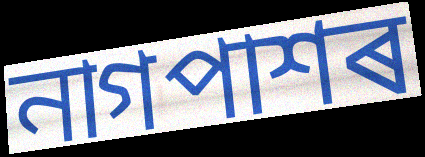
নাগপাশৰ